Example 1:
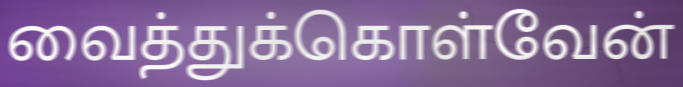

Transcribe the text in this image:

வைத்துக்கொள்வேன்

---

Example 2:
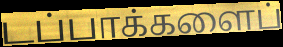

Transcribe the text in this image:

டப்பாக்களைப்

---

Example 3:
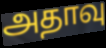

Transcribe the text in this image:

அதாவு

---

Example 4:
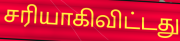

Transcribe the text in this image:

சரியாகிவிட்டது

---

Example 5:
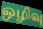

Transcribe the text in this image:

ஒழிவு